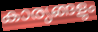
കാര്യങ്ങളും